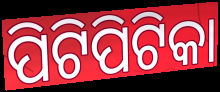
ପିଟିପିଟିକା